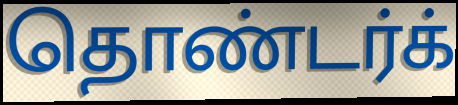
தொண்டர்க்